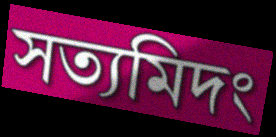
সত্যমিদং